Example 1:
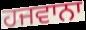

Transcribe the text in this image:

ਹਜਵਾਨਾ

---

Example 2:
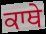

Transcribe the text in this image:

ਕਾਥੇ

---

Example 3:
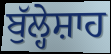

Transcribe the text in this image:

ਬੁੱਲ੍ਹੇਸ਼ਾਹ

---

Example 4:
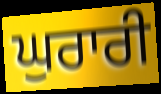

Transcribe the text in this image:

ਘੁਰਾਰੀ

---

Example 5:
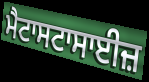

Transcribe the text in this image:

ਮੈਟਾਸਟਾਸਾਈਜ਼